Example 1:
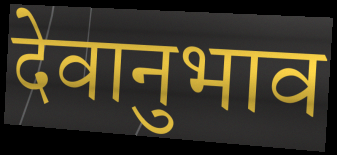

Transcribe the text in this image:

देवानुभाव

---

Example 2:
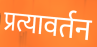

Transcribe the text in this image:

प्रत्यावर्तन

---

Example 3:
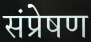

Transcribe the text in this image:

संप्रेषण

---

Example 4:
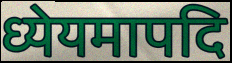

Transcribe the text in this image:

ध्येयमापदि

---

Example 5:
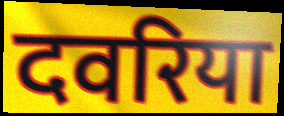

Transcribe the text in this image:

दवरिया